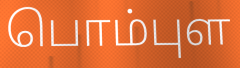
பொம்புள